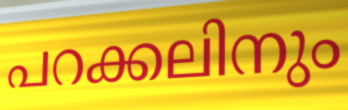
പറക്കലിനും